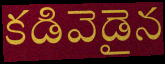
కడివెడైన